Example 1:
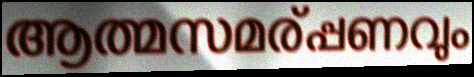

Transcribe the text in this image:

ആത്മസമര്പ്പണവും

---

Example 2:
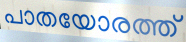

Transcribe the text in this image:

പാതയോരത്ത്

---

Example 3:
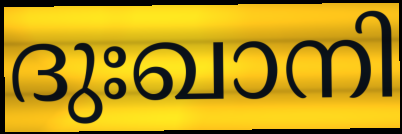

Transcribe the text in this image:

ദുഃഖാനി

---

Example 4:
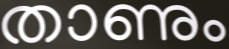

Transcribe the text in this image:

താണും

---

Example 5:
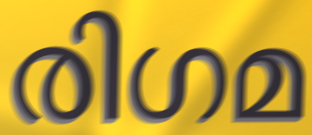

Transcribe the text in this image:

രിഗമ